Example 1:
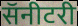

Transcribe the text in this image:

सॅनीटरी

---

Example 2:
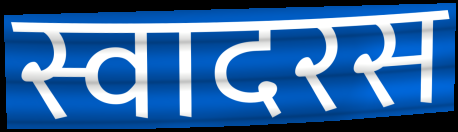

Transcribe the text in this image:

स्वादरस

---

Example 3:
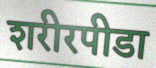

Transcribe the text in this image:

शरीरपीडा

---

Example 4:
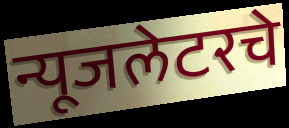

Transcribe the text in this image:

न्यूजलेटरचे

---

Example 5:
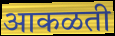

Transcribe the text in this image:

आकळती